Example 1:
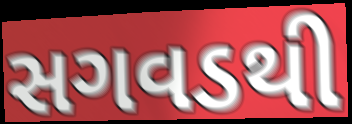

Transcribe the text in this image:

સગવડથી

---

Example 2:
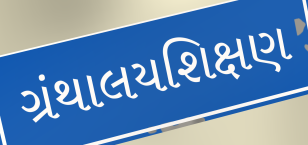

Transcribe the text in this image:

ગ્રંથાલયશિક્ષણ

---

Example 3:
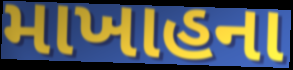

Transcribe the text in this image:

માખાહના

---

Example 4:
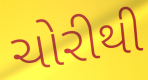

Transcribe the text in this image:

ચોરીથી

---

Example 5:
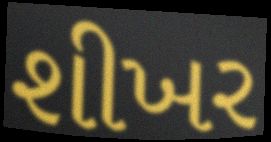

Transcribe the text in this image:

શીખર